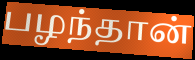
பழந்தான்